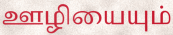
ஊழியையும்